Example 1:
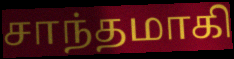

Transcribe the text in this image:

சாந்தமாகி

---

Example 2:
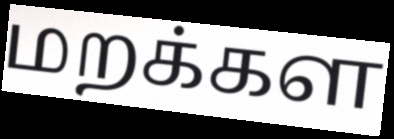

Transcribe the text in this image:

மறக்கள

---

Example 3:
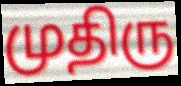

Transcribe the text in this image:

முதிரு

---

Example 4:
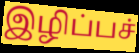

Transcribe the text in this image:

இழிப்பச்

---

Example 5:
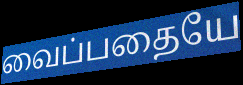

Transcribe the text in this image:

வைப்பதையே